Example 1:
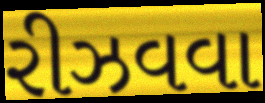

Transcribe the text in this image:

રીઝવવા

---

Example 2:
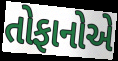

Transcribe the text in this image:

તોફાનોએ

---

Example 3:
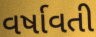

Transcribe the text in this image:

વર્ષાવતી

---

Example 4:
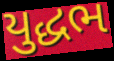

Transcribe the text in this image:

યુદ્ધભ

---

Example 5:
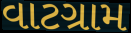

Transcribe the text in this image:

વાટગ્રામ